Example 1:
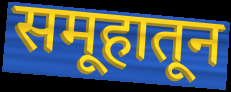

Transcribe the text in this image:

समूहातून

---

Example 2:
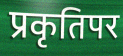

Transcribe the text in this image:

प्रकृतिपर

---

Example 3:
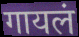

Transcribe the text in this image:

गायलं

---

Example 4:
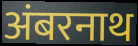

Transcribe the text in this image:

अंबरनाथ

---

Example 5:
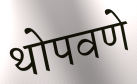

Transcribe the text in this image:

थोपवणे